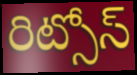
రిట్సోస్